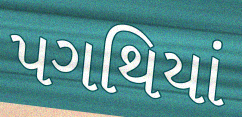
પગથિયાં